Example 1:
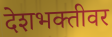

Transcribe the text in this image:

देशभक्तीवर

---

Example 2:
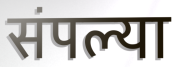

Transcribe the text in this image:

संपल्या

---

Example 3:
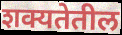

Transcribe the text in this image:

शक्यतेतील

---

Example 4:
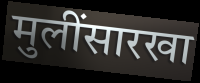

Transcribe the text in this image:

मुलींसारखा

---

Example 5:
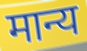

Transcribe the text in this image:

मान्य